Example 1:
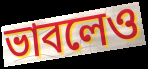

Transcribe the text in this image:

ভাবলেও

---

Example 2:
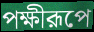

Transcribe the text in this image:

পক্ষীরূপে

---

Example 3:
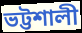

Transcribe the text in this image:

ভট্টশালী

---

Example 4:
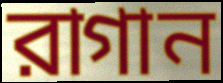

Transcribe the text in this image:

রাগান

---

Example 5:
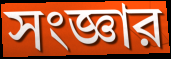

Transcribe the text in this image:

সংজ্ঞার